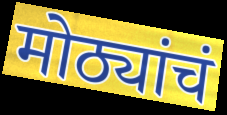
मोठ्यांचं